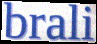
brali